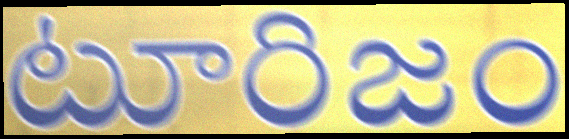
టూరిజం